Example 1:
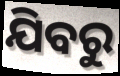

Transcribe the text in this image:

ଯିବରୁ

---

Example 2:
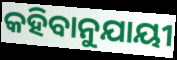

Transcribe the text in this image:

କହିବାନୁଯାୟୀ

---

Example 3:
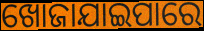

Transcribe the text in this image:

ଖୋଜାଯାଇପାରେ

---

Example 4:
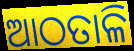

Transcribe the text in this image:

ଆଠତାଳି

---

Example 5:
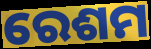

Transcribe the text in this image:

ରେଶମ